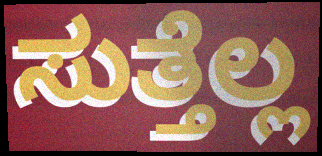
ಸುತ್ತೆಲ್ಲ